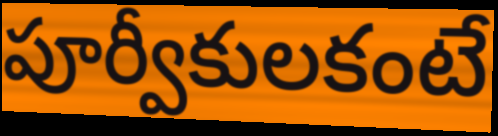
పూర్వీకులకంటే